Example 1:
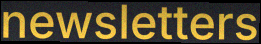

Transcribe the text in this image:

newsletters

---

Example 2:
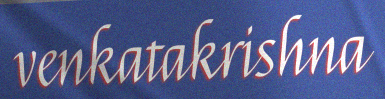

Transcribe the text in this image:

venkatakrishna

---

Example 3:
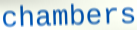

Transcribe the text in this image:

chambers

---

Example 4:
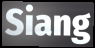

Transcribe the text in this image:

Siang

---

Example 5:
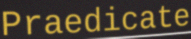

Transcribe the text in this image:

Praedicate